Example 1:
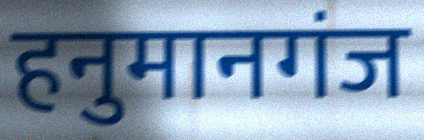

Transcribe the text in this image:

हनुमानगंज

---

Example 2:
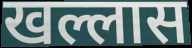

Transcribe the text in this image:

खल्लास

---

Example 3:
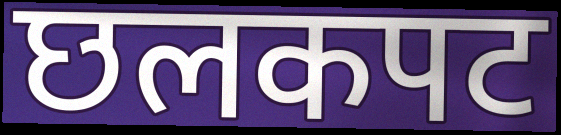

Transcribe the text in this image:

छलकपट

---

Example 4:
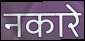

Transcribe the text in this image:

नकारे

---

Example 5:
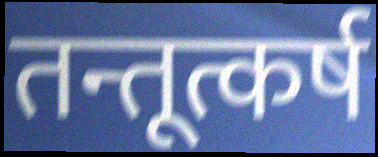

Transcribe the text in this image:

तन्तूत्कर्ष